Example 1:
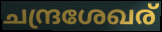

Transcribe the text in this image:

ചന്ദ്രശേഖര്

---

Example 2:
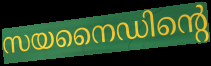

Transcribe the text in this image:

സയനൈഡിന്റെ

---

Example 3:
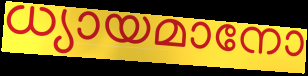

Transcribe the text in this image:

ധ്യായമാനോ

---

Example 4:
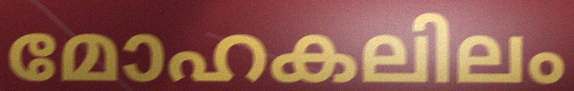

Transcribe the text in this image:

മോഹകലിലം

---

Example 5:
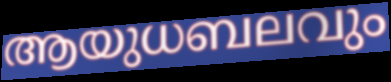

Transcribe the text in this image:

ആയുധബലവും